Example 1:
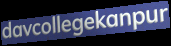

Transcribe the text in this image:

davcollegekanpur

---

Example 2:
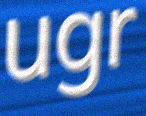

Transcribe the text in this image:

ugr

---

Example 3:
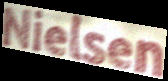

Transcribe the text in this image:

Nielsen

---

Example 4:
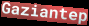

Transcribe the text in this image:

Gaziantep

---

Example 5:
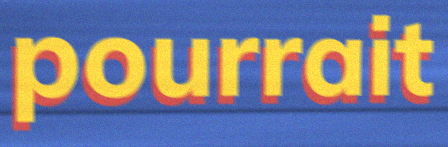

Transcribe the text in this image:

pourrait